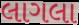
લાગલા